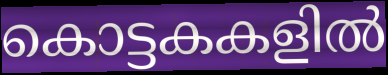
കൊട്ടകകളിൽ